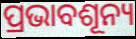
ପ୍ରଭାବଶୂନ୍ୟ